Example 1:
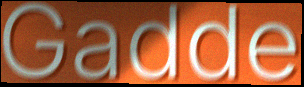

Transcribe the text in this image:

Gadde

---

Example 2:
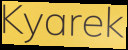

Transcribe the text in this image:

Kyarek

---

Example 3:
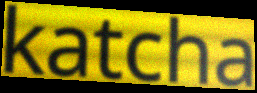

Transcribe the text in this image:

katcha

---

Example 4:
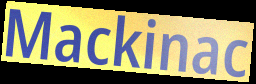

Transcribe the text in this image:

Mackinac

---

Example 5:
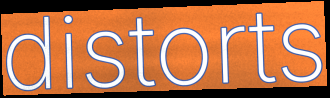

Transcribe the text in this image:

distorts